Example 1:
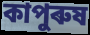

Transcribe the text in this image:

কাপুৰুষ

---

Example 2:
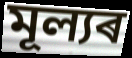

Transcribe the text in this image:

মূল্যৰ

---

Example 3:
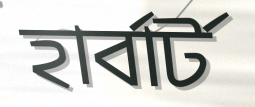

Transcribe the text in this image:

হাৰ্বাৰ্ট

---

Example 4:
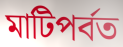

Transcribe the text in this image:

মাটিপৰ্বত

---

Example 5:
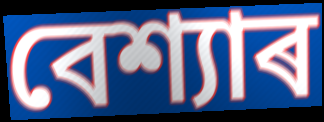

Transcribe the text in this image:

বেশ্যাৰ